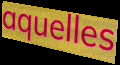
aquelles